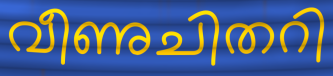
വീണുചിതറി